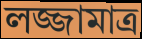
লজ্জামাত্র